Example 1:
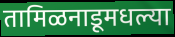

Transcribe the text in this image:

तामिळनाडूमधल्या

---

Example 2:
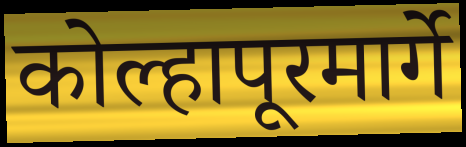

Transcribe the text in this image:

कोल्हापूरमार्गे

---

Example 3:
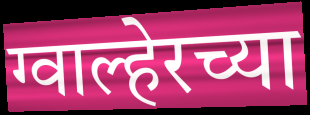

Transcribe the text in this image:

ग्वाल्हेरच्या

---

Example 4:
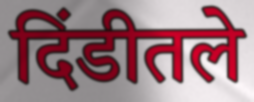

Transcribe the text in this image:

दिंडीतले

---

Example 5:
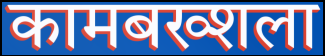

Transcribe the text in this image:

कामबख्शला